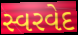
સ્વરવેદ